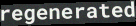
regenerated